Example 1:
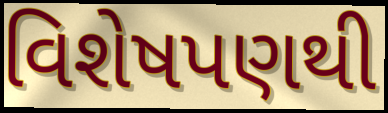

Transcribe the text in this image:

વિશેષપણથી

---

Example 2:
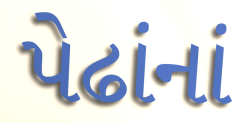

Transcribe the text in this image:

પેઢાંનાં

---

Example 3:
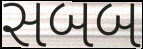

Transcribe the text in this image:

સબબ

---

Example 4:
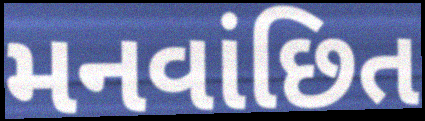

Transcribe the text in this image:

મનવાંછિત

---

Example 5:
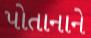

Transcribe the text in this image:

પોતાનાને